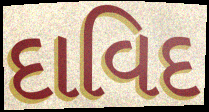
દાવિદ